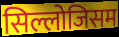
सिल्लोजिसम